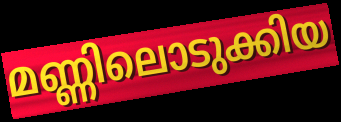
മണ്ണിലൊടുക്കിയ